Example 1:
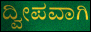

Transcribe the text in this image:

ದ್ವೀಪವಾಗಿ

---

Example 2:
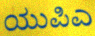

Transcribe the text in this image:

ಯುಪಿಎ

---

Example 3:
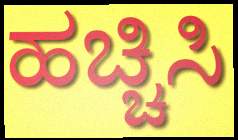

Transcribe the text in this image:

ಹಚ್ಚಿಸಿ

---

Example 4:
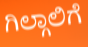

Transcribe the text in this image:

ಗಿಲ್ಗಾಲಿಗೆ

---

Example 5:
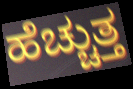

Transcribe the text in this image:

ಹೆಚ್ಚುತ್ತ